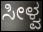
ಸೀಳ್ವ